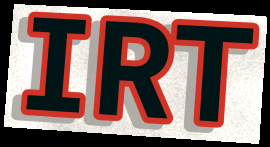
IRT